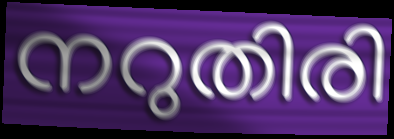
നറുതിരി